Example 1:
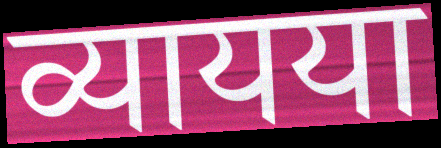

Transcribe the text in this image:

व्यायया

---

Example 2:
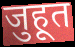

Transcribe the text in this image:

जुहूत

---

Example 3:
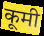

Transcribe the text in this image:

कूमी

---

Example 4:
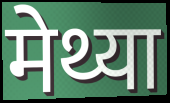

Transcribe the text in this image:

मेथ्या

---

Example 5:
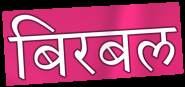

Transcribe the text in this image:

बिरबल